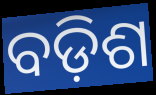
ବଡ଼ିଶ